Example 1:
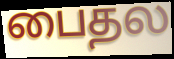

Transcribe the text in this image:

பைதல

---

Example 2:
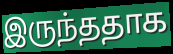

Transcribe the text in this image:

இருந்ததாக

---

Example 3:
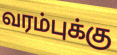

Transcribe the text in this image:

வரம்புக்கு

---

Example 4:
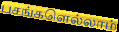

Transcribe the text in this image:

பசங்களெல்லாம்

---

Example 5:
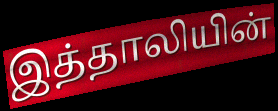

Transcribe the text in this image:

இத்தாலியின்